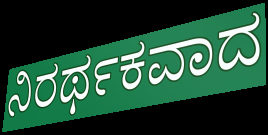
ನಿರರ್ಥಕವಾದ